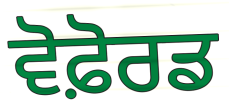
ਵੋਫ਼ੋਰਡ